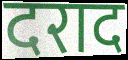
दराद